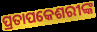
ପ୍ରତାପକେଶରୀଙ୍କ